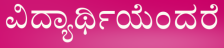
ವಿದ್ಯಾರ್ಥಿಯೆಂದರೆ